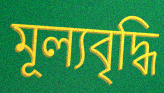
মূল্যবৃদ্ধি